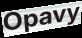
Opavy